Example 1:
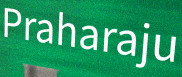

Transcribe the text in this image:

Praharaju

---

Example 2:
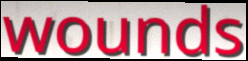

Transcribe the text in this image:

wounds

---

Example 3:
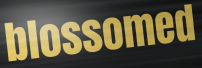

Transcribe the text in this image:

blossomed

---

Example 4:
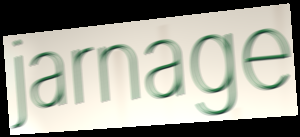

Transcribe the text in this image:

jarnage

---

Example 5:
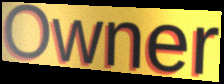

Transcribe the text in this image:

Owner